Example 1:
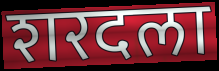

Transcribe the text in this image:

शरदला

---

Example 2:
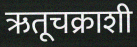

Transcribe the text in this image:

ऋतूचक्राशी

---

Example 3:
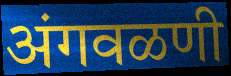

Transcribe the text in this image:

अंगवळणी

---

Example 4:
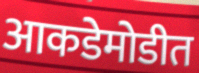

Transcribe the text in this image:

आकडेमोडीत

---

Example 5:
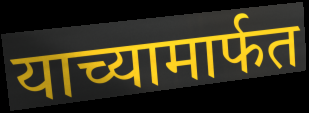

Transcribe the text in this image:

याच्यामार्फत